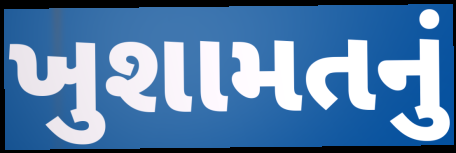
ખુશામતનું